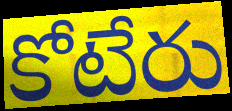
కోటేరు